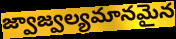
జ్వాజ్వల్యమానమైన